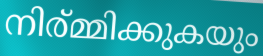
നിര്മ്മിക്കുകയും